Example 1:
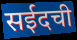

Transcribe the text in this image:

सईदची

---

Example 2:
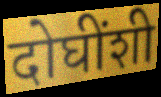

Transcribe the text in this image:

दोघींशी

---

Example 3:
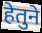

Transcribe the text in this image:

हेतुने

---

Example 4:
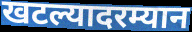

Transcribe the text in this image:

खटल्यादरम्यान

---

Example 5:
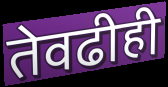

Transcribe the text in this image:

तेवढीही